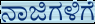
ನಾಜಿಗಳಿಗೆ